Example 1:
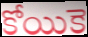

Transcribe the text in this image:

కోయికె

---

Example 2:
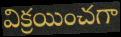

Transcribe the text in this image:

విక్రయించగా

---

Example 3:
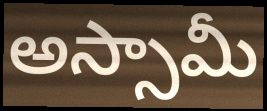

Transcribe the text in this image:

అస్సామీ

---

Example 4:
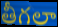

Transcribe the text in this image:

తీగలా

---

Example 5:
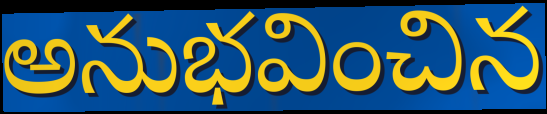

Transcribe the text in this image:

అనుభవించిన